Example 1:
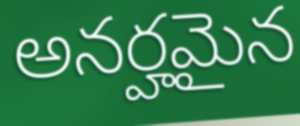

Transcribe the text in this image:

అనర్హమైన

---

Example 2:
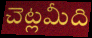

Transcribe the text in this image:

చెట్లమీది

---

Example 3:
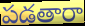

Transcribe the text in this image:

పడతారా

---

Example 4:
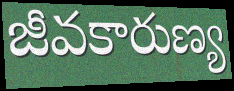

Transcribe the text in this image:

జీవకారుణ్య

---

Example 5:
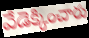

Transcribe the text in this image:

వేడెక్కించారు